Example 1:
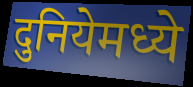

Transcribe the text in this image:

दुनियेमध्ये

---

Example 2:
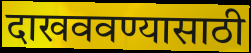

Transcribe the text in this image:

दाखववण्यासाठी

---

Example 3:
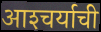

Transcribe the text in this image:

आश्‍चर्याची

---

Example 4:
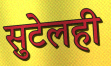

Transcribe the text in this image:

सुटेलही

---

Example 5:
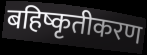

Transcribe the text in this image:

बहिष्कृतीकरण